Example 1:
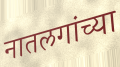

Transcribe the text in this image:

नातलगांच्या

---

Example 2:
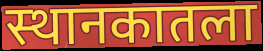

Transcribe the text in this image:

स्थानकातला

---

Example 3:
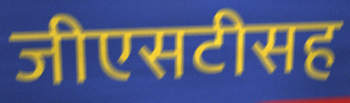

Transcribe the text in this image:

जीएसटीसह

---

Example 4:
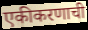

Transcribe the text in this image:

एकीकरणाची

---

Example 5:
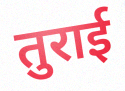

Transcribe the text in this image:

तुराई